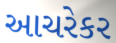
આચરેકર